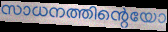
സാധനത്തിന്റെയോ